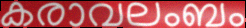
കരാവലംബം